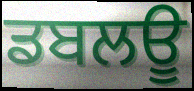
ਡਬਲਊ